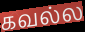
கவல்ல